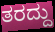
ತರದ್ದು